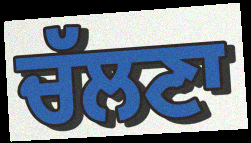
ਚੱਲਣਾ